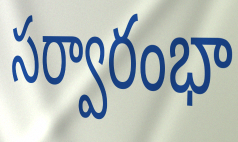
సర్వారంభా